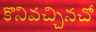
కొనివచ్చినచో